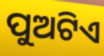
ପୁଅଟିଏ